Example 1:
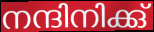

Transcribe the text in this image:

നന്ദിനിക്കു്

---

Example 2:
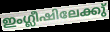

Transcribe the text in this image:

ഇംഗ്ലീഷിലേക്കു്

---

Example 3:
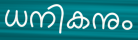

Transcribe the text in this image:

ധനികനും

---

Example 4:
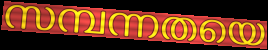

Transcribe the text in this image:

സമ്പന്നതയെ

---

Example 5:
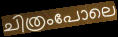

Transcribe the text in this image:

ചിത്രംപോലെ